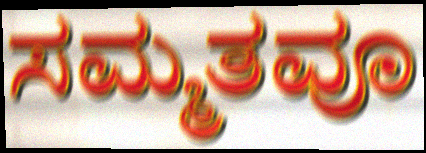
ಸಮ್ಮತವೂ